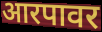
आरपावर